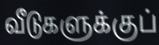
வீடுகளுக்குப்